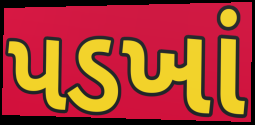
પડખાં